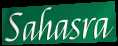
Sahasra